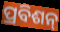
ପ୍ରବିଶନ୍